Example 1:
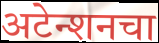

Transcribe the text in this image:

अटेन्शनचा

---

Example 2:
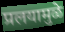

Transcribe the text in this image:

प्रलयामुळे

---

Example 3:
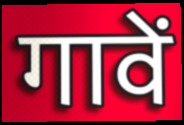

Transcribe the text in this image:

गावें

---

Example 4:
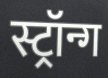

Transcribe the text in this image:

स्ट्रॉन्ग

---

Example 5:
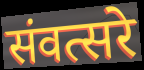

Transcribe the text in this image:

संवत्सरे